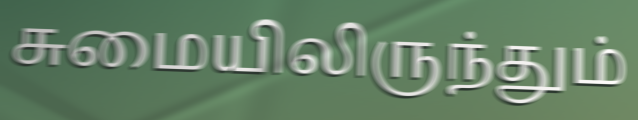
சுமையிலிருந்தும்